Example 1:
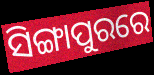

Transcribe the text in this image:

ସିଙ୍ଗାପୁରରେ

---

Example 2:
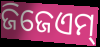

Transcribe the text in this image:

ଜିଜେଏମ୍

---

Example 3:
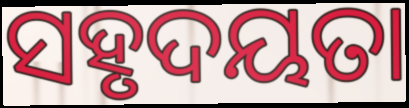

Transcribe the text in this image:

ସହୃଦୟତା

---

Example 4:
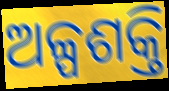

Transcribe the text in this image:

ଅଳ୍ପଶକ୍ତି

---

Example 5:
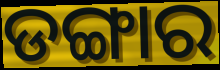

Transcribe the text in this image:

ଡଙ୍ଗାର